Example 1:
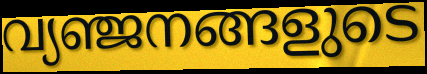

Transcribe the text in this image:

വ്യഞ്ജനങ്ങളുടെ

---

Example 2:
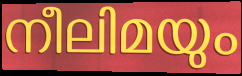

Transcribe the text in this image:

നീലിമയും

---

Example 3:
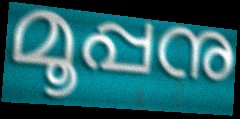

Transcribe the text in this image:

മൂപ്പനു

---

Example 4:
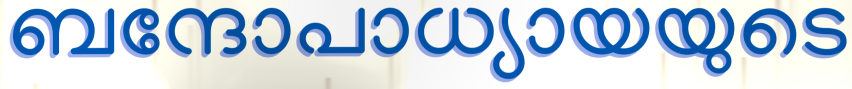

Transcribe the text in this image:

ബന്ദോപാധ്യായയുടെ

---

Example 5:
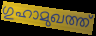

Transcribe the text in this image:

ഗുഹാമുഖത്ത്